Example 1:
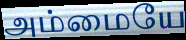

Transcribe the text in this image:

அம்மையே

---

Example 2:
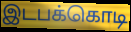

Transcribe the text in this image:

இடபக்கொடி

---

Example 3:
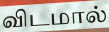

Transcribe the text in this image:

விடமால்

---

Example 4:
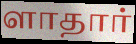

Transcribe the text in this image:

ளாதார்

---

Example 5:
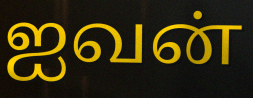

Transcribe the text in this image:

ஐவன்